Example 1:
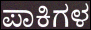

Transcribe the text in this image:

ಪಾಕಿಗಳ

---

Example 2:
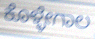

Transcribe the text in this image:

ಕೊಳ್ಳೇಗಾಲ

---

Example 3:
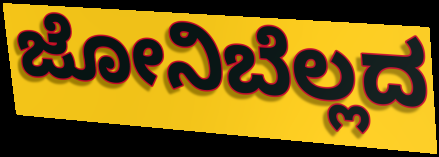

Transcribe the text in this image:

ಜೋನಿಬೆಲ್ಲದ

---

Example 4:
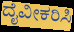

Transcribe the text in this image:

ದೈವೀಕರಿಸಿ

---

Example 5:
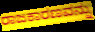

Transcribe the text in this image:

ರಾಜಕಾರಣವನ್ನು